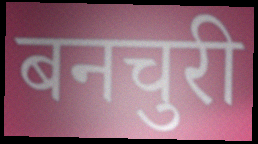
बनचुरी